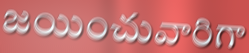
జయించువారిగా